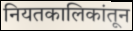
नियतकालिकांतून